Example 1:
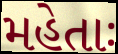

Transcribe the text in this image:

મહેતાઃ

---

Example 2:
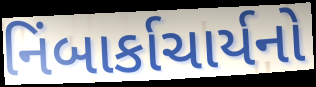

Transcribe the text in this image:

નિંબાર્કાચાર્યનો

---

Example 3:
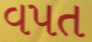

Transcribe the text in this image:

વપત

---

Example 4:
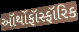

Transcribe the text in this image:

ઑર્થોફૉસ્ફૉરિક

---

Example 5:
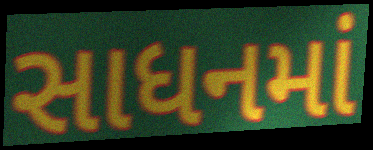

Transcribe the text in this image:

સાધનમાં